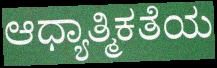
ಆಧ್ಯಾತ್ಮಿಕತೆಯ